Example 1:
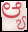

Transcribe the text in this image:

ಆ್ಯ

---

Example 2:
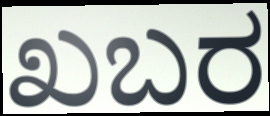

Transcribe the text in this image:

ಖಬರ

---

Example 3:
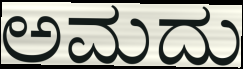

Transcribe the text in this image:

ಅಮದು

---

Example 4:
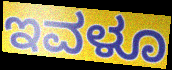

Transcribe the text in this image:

ಇವಳೂ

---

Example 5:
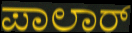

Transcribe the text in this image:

ಪಾಲಾರ್